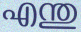
എന്തു